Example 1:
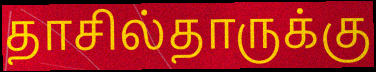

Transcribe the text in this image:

தாசில்தாருக்கு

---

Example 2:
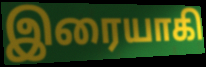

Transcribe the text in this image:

இரையாகி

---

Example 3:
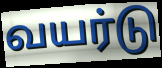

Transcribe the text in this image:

வயர்டு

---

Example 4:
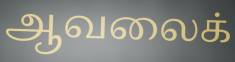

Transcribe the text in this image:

ஆவலைக்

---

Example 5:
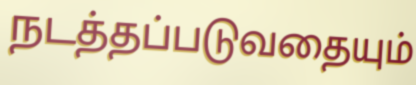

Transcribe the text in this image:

நடத்தப்படுவதையும்